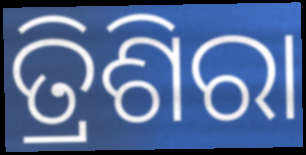
ତ୍ରିଶିରା